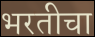
भरतीचा